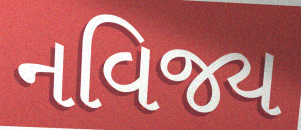
નવિજ્ય